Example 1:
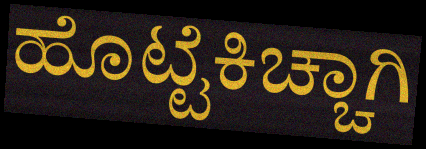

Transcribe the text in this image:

ಹೊಟ್ಟೆಕಿಚ್ಚಾಗಿ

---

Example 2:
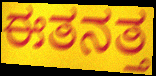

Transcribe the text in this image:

ಈತನತ್ತ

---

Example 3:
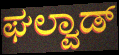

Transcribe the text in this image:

ಘಲ್ವಾಡ್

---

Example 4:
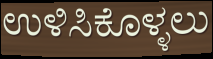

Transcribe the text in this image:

ಉಳಿಸಿಕೊಳ್ಳಲು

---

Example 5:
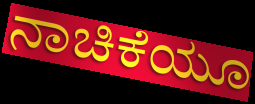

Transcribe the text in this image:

ನಾಚಿಕೆಯೂ